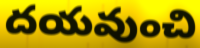
దయవుంచి